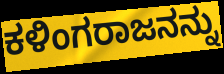
ಕಳಿಂಗರಾಜನನ್ನು